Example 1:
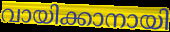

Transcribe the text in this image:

വായിക്കാനായി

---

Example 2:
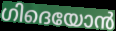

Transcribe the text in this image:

ഗിദെയോൻ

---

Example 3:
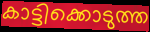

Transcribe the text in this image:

കാട്ടിക്കൊടുത്ത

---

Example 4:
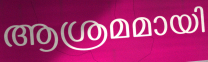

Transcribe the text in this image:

ആശ്രമമായി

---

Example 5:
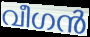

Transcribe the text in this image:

വീഗൻ